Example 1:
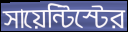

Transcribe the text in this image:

সায়েন্টিস্টের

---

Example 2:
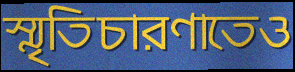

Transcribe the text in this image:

স্মৃতিচারণাতেও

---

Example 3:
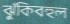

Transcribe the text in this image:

ঝুঁকিবহুল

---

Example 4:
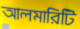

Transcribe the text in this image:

আলমারিটি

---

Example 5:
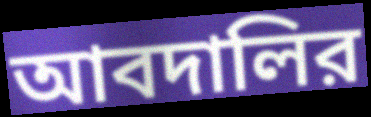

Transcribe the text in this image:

আবদালির